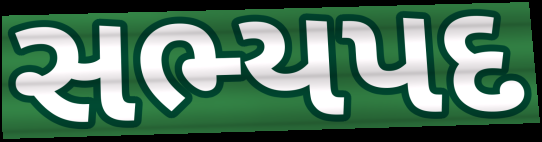
સભ્યપદ